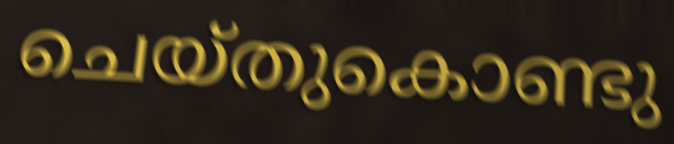
ചെയ്തുകൊണ്ടു